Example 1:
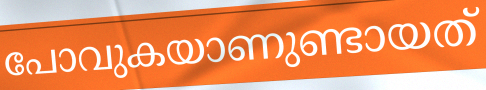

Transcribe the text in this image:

പോവുകയാണുണ്ടായത്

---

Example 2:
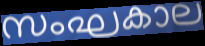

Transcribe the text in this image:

സംഘകാല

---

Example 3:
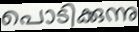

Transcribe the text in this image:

പൊടിക്കുന്നു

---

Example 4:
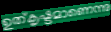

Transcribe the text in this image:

ഉത്കൃഷ്ടമാണെന്നു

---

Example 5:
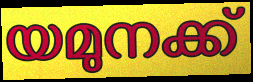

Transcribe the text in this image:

യമുനക്ക്